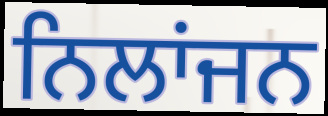
ਨਿਲਾਂਜਨ